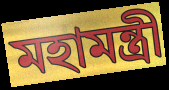
মহামন্ত্রী